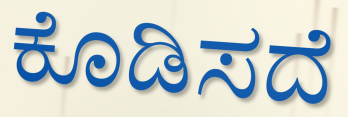
ಕೊಡಿಸದೆ